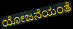
ಯೋಜನೆಯಂತೆ